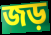
জড়